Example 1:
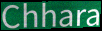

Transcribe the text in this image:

Chhara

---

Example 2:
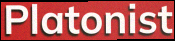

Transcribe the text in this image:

Platonist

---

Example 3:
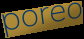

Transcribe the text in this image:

poreo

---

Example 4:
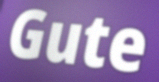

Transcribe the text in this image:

Gute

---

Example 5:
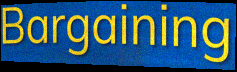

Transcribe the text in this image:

Bargaining